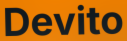
Devito